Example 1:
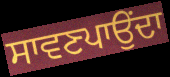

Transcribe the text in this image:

ਸਾਵਣਪਾਉਂਦਾ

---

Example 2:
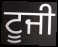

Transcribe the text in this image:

ਟੂਜੀ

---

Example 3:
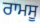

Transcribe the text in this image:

ਰਾਮਸੂ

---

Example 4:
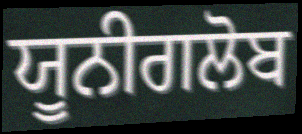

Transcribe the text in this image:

ਯੂਨੀਗਲੋਬ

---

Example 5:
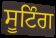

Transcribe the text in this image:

ਸੂਟਿੰਗ